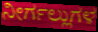
ನೀರ್ಗಲ್ಲುಗಳ